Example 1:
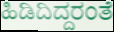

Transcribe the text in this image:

ಹಿಡಿದಿದ್ದರಂತೆ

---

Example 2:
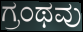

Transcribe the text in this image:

ಗ್ರಂಥವು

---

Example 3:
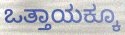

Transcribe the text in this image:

ಒತ್ತಾಯಕ್ಕೂ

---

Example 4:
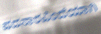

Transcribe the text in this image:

ವದನಾರವಿಂದೆಯಾಗಿ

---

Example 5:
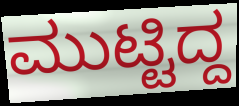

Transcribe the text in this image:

ಮುಟ್ಟಿದ್ದ